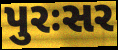
પુરઃસર